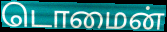
டொமைன்